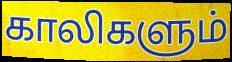
காலிகளும்